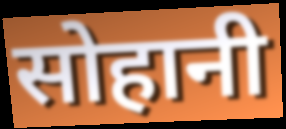
सोहानी